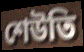
শেউতি